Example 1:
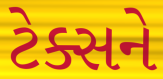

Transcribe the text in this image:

ટેક્સને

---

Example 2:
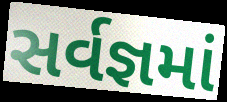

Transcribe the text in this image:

સર્વજ્ઞમાં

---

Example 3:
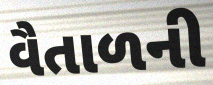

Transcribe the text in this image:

વૈતાળની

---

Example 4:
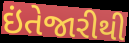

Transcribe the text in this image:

ઇંતેજારીથી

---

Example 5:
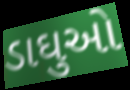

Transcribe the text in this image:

ડાઘુઓ